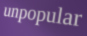
unpopular